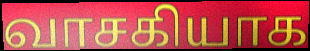
வாசகியாக